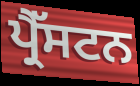
ਪ੍ਰੈੱਸਟਨ